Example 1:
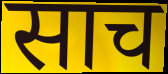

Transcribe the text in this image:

साच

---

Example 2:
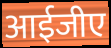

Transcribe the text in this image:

आईजीए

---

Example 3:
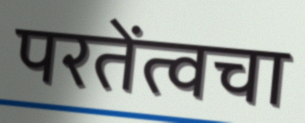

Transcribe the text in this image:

परतेंत्वचा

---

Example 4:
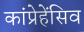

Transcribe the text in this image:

कांप्रेहेंसिव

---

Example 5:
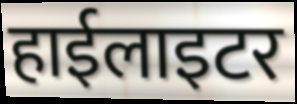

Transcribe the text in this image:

हाईलाइटर